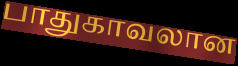
பாதுகாவலான